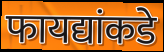
फायद्यांकडे